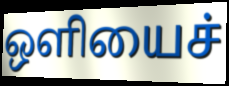
ஒளியைச்